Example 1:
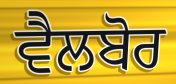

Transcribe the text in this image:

ਵੈਲਬੋਰ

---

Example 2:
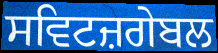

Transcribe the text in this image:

ਸਵਿਟਜ਼ਗੇਬਲ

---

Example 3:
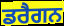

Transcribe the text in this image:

ਡਰੈਗਨ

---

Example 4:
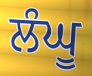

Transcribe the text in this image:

ਲੰਘੂ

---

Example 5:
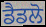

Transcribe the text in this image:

ਡੈਡਲੋ